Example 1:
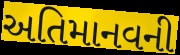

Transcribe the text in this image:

અતિમાનવની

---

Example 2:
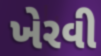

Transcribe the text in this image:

ખેરવી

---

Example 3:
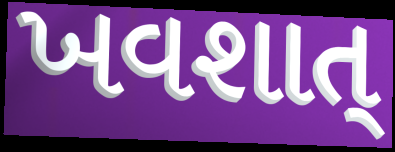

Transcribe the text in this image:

ખવશાત્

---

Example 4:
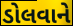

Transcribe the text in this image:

ડોલવાને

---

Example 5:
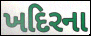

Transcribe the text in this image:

ખદિરના